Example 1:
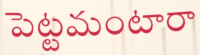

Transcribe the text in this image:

పెట్టమంటారా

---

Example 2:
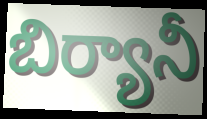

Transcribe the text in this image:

బిర్యానీ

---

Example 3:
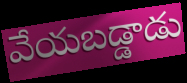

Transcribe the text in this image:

వేయబడ్డాడు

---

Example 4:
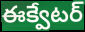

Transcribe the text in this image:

ఈక్వేటర్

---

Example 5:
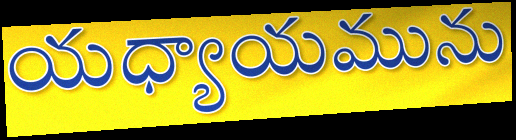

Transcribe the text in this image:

యధ్యాయమును